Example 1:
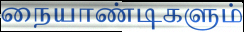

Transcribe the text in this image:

நையாண்டிகளும்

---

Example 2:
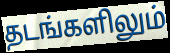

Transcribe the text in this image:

தடங்களிலும்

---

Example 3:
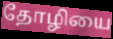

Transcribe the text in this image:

தோழியை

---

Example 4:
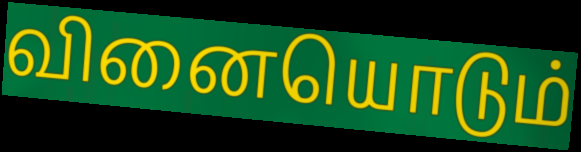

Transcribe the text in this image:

வினையொடும்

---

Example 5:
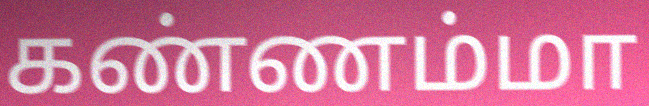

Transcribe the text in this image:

கண்ணம்மா